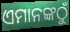
ଏମାନଙ୍କଠୁଁ